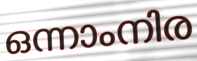
ഒന്നാംനിര